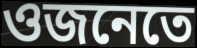
ওজনেতে